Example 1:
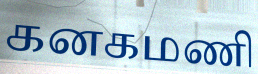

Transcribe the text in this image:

கனகமணி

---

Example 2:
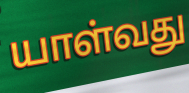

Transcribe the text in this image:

யாள்வது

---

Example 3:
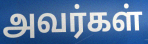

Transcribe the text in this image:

அவர்கள்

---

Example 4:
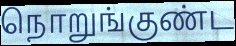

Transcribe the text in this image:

நொறுங்குண்ட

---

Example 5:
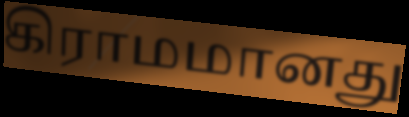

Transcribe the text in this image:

கிராமமானது